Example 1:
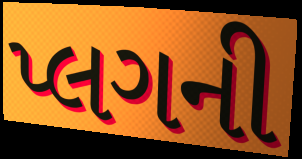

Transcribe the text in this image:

પ્લગની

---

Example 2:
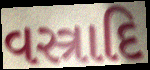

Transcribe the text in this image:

વસ્ત્રાદિ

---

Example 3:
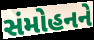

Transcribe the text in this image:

સંમોહનને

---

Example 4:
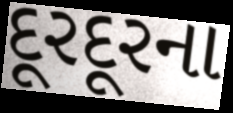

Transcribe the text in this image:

દૂરદૂરના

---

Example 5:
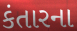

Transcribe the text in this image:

કંતારના